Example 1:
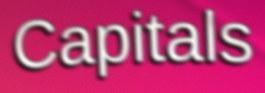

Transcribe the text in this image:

Capitals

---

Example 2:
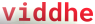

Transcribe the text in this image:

viddhe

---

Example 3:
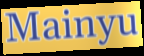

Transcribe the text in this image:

Mainyu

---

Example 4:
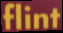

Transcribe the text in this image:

flint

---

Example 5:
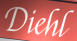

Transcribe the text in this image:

Diehl